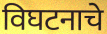
विघटनाचे